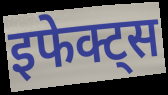
इफेक्ट्स